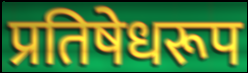
प्रतिषेधरूप